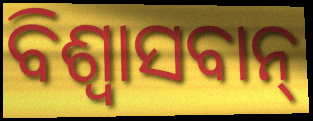
ବିଶ୍ଵାସବାନ୍